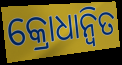
କ୍ରୋଧାନ୍ୱିତ